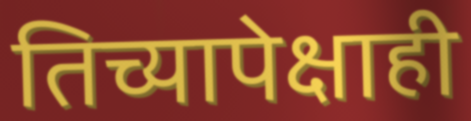
तिच्यापेक्षाही